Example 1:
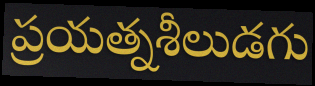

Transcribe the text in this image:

ప్రయత్నశీలుడగు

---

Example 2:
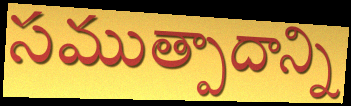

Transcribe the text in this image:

సముత్పాదాన్ని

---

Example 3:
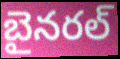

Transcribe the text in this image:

బైనరల్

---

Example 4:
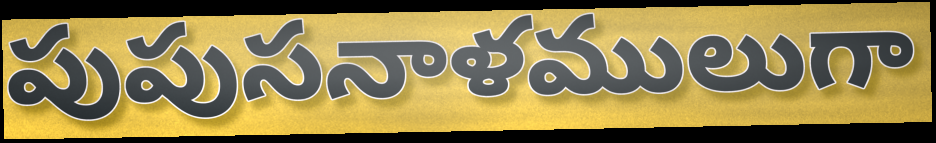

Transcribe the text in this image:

పుపుసనాళములుగా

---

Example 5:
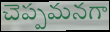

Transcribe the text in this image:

చెప్పమనగా